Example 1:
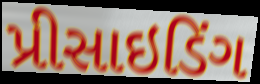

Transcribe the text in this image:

પ્રીસાઇડિંગ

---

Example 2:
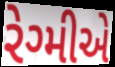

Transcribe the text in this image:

રેગ્મીએ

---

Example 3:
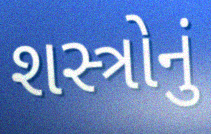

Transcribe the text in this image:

શસ્ત્રોનું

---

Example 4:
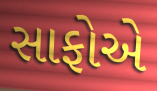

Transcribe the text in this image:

સાફોએ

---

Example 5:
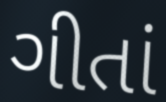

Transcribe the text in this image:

ગીતાં